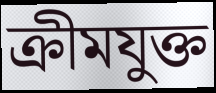
ক্ৰীমযুক্ত